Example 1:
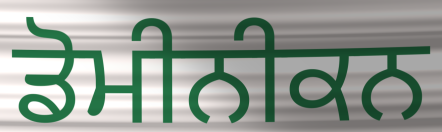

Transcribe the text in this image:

ਡੋਮੀਨੀਕਨ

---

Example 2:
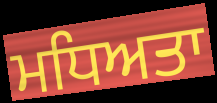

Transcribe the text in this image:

ਮਧਿਅਤਾ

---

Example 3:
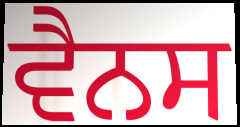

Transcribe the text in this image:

ਵੈਨਸ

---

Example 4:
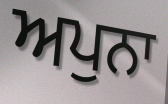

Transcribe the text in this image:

ਅਪੁਨਾ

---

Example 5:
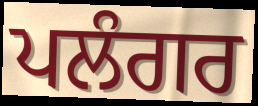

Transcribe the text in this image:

ਪਲੰਗਰ